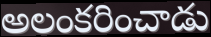
అలంకరించాడు